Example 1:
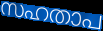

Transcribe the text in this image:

സഹതാപ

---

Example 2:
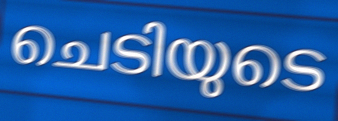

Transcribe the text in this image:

ചെടിയുടെ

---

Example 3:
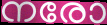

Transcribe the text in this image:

നരോ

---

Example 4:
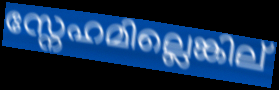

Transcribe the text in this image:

സ്നേഹമില്ലെങ്കില്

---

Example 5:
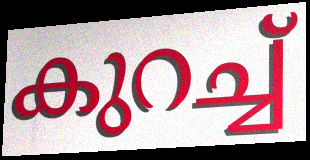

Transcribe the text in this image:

കുറച്ച്